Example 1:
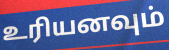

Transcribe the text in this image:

உரியனவும்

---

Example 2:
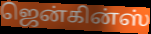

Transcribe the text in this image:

ஜென்கின்ஸ்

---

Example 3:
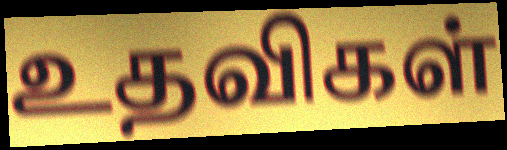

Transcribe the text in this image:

உதவிகள்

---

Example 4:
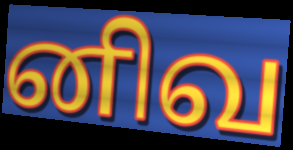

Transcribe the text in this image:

னிவ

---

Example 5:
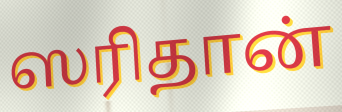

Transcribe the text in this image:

ஸரிதான்